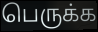
பெருக்க